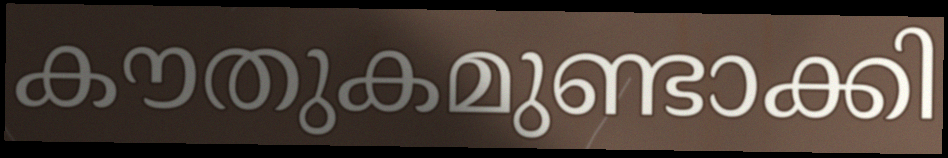
കൗതുകമുണ്ടാക്കി